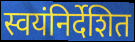
स्वयंनिर्देशित